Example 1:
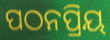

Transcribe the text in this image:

ପଠନପ୍ରିୟ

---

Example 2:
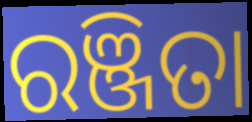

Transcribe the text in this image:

ରଞ୍ଜିତା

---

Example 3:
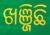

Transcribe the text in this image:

ଖଞ୍ଜିଛି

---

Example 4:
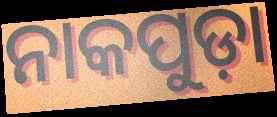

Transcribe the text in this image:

ନାକପୁଡ଼ା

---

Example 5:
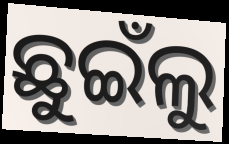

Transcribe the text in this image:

ଛୁଇଁଲୁ